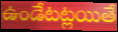
ఉండేటట్లయితే